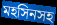
মহসিনসহ